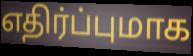
எதிர்ப்புமாக